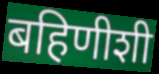
बहिणीशी